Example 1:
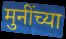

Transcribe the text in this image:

मुनींच्या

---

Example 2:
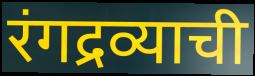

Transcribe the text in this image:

रंगद्रव्याची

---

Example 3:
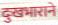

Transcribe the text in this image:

दुःखभाराने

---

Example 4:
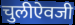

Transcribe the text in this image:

चुलीऐवजी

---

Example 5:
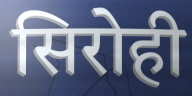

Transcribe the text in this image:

सिरोही